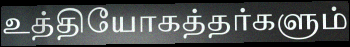
உத்தியோகத்தர்களும்